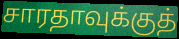
சாரதாவுக்குத்